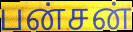
பன்சன்